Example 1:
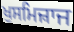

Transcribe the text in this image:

ਖੁਸਮਿਜ਼ਾਜ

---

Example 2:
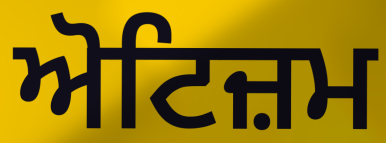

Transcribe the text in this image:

ਅੋਟਿਜ਼ਮ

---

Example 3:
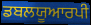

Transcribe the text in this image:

ਡਬਲਯੂਆਰਪੀ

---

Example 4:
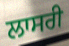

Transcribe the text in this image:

ਲਾਸਰੀ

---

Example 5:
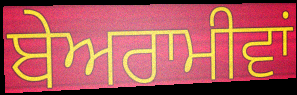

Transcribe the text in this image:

ਬੇਅਰਾਮੀਵਾਂ